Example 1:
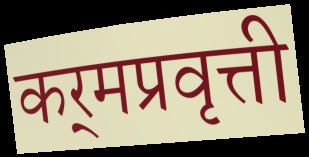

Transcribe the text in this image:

कर्मप्रवृत्ती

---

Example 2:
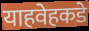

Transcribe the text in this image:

याहवेहकडे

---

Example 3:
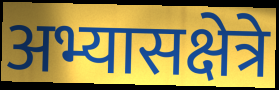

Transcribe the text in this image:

अभ्यासक्षेत्रे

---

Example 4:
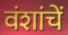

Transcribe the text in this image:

वंशांचें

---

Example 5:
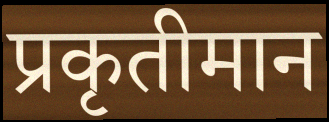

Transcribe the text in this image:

प्रकृतीमान